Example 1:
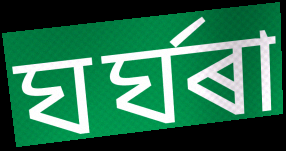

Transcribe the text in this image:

ঘৰ্ঘৰা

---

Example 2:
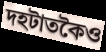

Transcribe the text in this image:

দহটাতকৈও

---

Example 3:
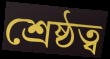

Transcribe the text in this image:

শ্ৰেষ্ঠত্ব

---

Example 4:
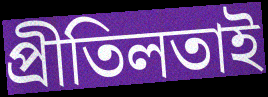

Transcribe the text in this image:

প্ৰীতিলতাই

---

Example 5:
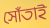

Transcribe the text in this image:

সোঁতাই